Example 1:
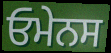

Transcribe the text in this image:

ਓਮੇਨਸ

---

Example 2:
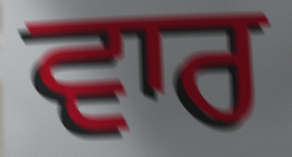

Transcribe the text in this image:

ਵਾਰ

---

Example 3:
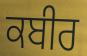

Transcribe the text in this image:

ਕਬੀਰ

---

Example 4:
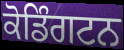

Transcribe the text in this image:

ਕੋਡਿੰਗਟਨ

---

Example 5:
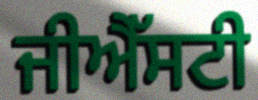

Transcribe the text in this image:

ਜੀਐੱਸਟੀ